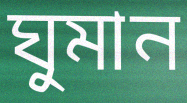
ঘুমান